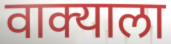
वाक्‍याला